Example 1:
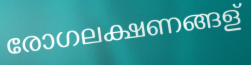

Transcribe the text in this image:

രോഗലക്ഷണങ്ങള്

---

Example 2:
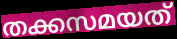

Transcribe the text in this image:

തക്കസമയത്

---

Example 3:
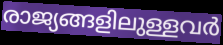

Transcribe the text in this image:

രാജ്യങ്ങളിലുള്ളവർ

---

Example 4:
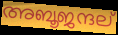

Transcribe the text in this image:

അബൂജന്ദല്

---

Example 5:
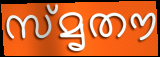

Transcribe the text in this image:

സ്മൃതൗ